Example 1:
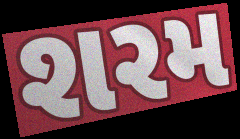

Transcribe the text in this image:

શરમ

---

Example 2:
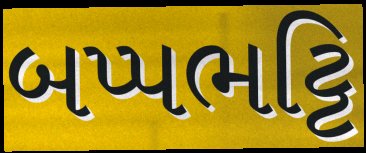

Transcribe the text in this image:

બપ્પભટ્ટિ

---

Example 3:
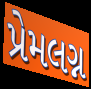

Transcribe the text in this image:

પ્રેમલગ્ન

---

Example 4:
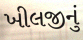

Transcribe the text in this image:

ખીલજીનું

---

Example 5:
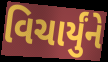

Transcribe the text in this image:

વિચાર્યુંને